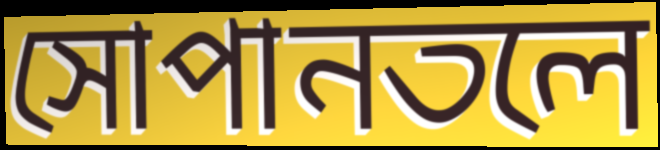
সোপানতলে